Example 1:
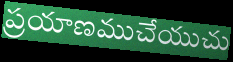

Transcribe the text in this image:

ప్రయాణముచేయుచు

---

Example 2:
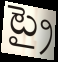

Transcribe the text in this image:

ట్రై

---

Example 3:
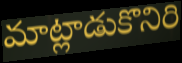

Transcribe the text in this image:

మాట్లాడుకొనిరి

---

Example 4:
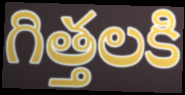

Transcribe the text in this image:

గిత్తలకి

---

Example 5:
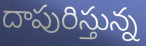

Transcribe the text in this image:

దాపురిస్తున్న